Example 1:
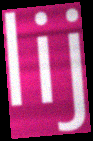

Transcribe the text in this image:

lij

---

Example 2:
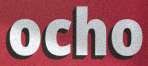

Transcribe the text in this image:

ocho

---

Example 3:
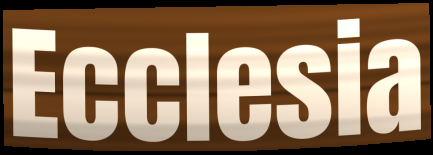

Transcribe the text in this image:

Ecclesia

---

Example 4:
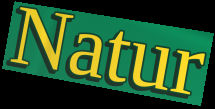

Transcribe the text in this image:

Natur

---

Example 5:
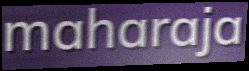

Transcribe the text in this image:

maharaja